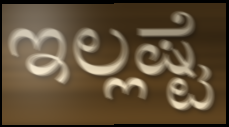
ಇಲ್ಲಷ್ಟೆ